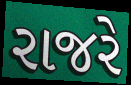
રાજરે